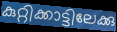
കുറ്റിക്കാട്ടിലേക്കു